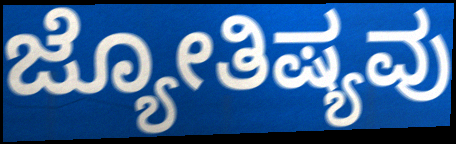
ಜ್ಯೋತಿಷ್ಯವು